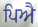
ਪਿਐ